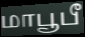
மாபூபீ